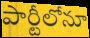
పార్టీలోనూ